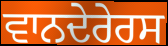
ਵਾਨਦੇਰੇਰਸ